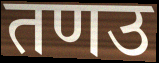
तणउ